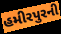
હમીરપુરની